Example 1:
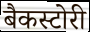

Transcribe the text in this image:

बैकस्टोरी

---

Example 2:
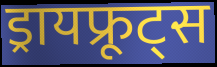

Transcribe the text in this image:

ड्रायफ्रूट्स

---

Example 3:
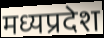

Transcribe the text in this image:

मध्‍यप्रदेश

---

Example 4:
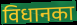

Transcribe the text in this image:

विधानका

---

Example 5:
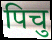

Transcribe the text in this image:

पिचु